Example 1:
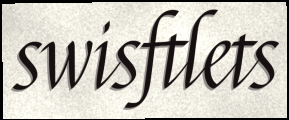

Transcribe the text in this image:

swisftlets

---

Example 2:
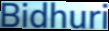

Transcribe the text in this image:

Bidhuri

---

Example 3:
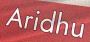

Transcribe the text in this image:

Aridhu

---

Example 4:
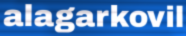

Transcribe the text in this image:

alagarkovil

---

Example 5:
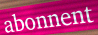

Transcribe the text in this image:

abonnent